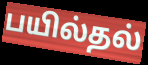
பயில்தல்